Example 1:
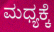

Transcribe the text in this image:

ಮಧ್ಯಕ್ಕೆ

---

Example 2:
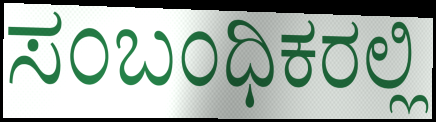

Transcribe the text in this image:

ಸಂಬಂಧಿಕರಲ್ಲಿ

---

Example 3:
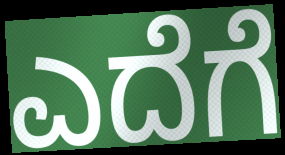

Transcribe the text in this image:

ಎದೆಗೆ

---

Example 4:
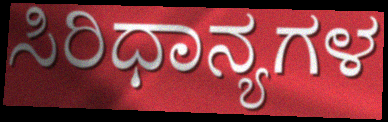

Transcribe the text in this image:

ಸಿರಿಧಾನ್ಯಗಳ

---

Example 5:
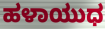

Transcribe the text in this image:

ಹಳಾಯುಧ